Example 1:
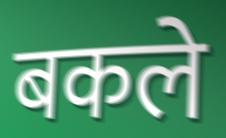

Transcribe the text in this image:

बकले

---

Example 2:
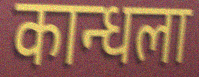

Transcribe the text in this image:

कान्धला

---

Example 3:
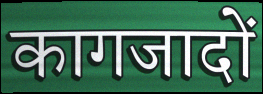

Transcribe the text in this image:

कागजादों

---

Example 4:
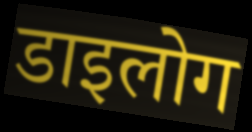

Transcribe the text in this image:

डाइलोग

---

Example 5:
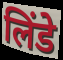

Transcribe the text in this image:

लिंडे